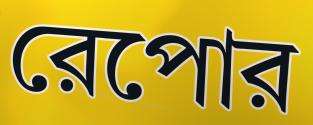
রেপোর